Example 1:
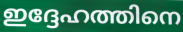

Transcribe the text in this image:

ഇദ്ദേഹത്തിനെ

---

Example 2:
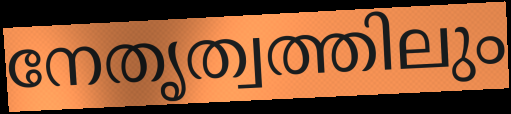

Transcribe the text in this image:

നേതൃത്വത്തിലും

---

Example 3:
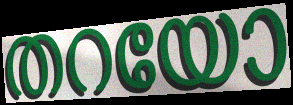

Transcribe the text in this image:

തറയോ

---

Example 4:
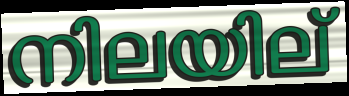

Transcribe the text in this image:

നിലയില്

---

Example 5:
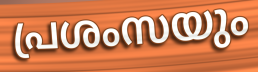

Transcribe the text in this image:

പ്രശംസയും